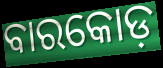
ବାରକୋଡ଼